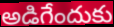
అడిగేందుకు